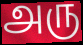
அரு